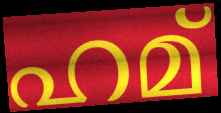
ഹമ്